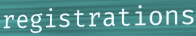
registrations